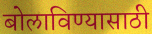
बोलाविण्यासाठी